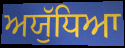
ਅਯੁੱਧਿਆ